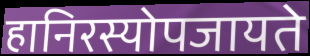
हानिरस्योपजायते